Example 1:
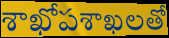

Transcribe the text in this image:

శాఖోపశాఖలతో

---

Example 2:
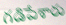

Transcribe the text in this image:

గడిపేశారు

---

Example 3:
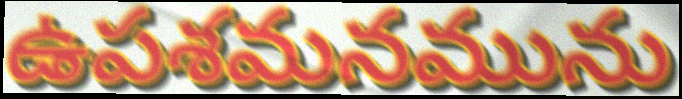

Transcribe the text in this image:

ఉపశమనమును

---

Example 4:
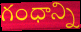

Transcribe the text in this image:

గంధాన్ని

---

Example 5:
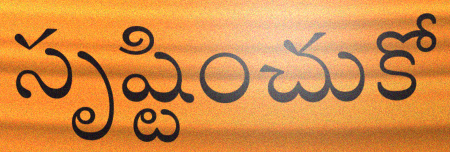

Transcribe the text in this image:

సృష్టించుకో